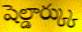
షెల్డార్క్కు